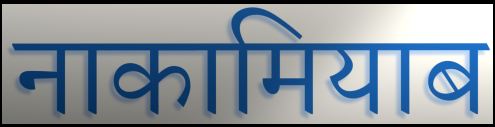
नाकामियाब